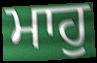
ਮਾਹੁ